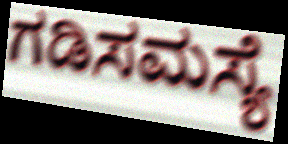
ಗಡಿಸಮಸ್ಯೆ